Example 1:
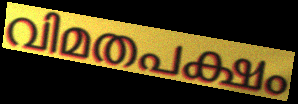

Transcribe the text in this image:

വിമതപക്ഷം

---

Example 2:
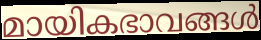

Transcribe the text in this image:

മായികഭാവങ്ങൾ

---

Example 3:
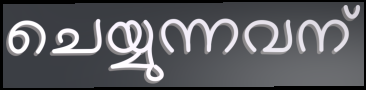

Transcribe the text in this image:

ചെയ്യുന്നവന്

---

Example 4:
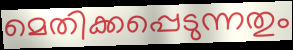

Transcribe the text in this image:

മെതിക്കപ്പെടുന്നതും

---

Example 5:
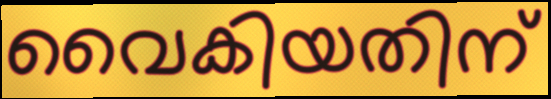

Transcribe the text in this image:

വൈകിയതിന്